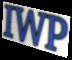
IWP